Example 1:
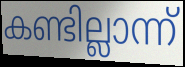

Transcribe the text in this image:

കണ്ടില്ലാന്ന്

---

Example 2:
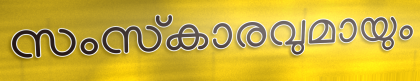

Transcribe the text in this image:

സംസ്‌കാരവുമായും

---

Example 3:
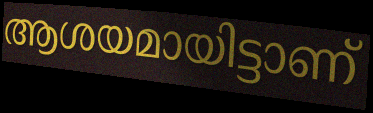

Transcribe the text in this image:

ആശയമായിട്ടാണ്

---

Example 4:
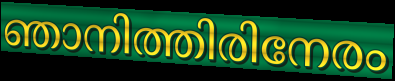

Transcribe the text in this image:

ഞാനിത്തിരിനേരം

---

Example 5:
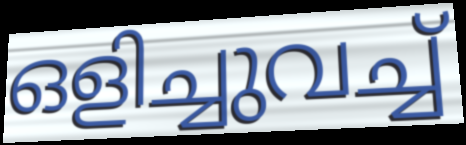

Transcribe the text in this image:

ഒളിച്ചുവച്ച്